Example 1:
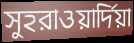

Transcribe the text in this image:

সুহরাওয়ার্দিয়া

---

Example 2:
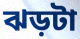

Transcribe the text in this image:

ঝড়টা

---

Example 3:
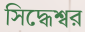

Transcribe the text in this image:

সিদ্ধেশ্বর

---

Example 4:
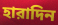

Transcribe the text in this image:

হারাদিন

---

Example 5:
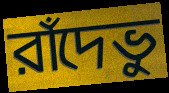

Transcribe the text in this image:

রাঁদেভু